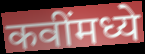
कवींमध्ये